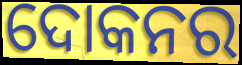
ଦୋକନର